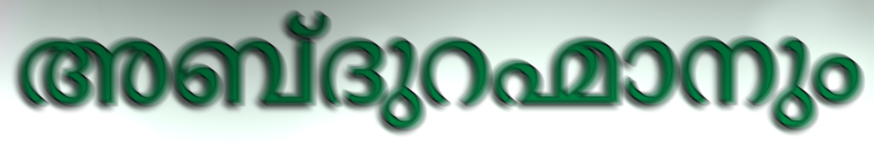
അബ്ദുറഹ്മാനും